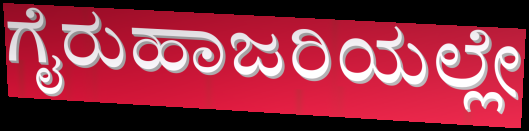
ಗೈರುಹಾಜರಿಯಲ್ಲೇ